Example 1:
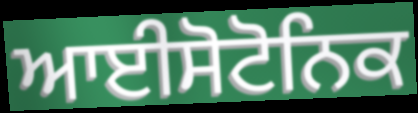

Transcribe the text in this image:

ਆਈਸੋਟੋਨਿਕ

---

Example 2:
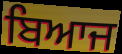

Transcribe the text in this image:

ਬਿਆਜ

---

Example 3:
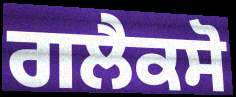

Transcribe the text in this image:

ਗਲੈਕਸੋ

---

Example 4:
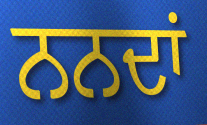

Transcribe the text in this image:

ਨਨਦਾਂ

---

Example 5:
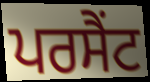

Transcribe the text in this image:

ਪਰਸੈਂਟ